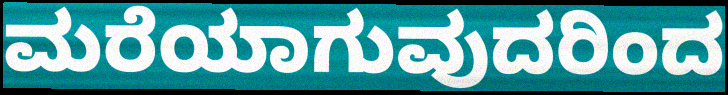
ಮರೆಯಾಗುವುದರಿಂದ